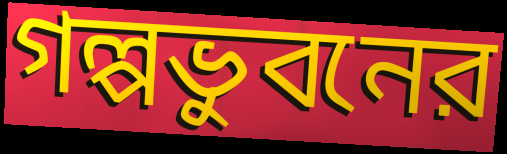
গল্পভুবনের